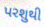
પરશુથી